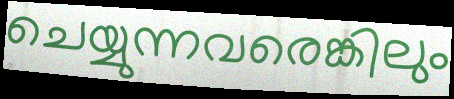
ചെയ്യുന്നവരെങ്കിലും